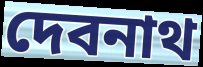
দেবনাথ